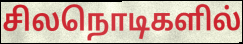
சிலநொடிகளில்